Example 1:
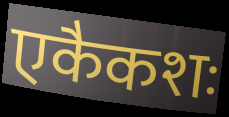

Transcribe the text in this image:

एकैकशः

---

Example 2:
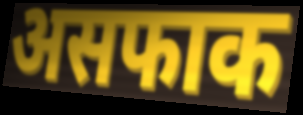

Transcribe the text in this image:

असफाक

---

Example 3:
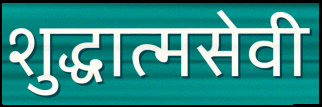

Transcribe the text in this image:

शुद्धात्मसेवी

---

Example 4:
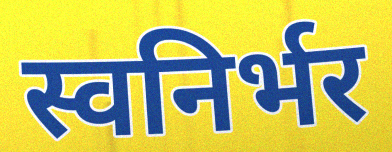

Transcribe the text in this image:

स्वनिर्भर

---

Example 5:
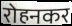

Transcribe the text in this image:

रोहनकर